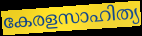
കേരളസാഹിത്യ